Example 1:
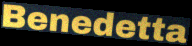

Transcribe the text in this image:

Benedetta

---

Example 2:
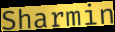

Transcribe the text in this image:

Sharmin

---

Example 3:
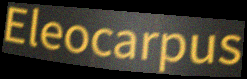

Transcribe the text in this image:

Eleocarpus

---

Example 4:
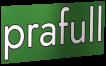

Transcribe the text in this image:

prafull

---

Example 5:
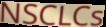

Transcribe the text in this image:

NSCLCs